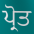
ਪ੍ਰੋਤ